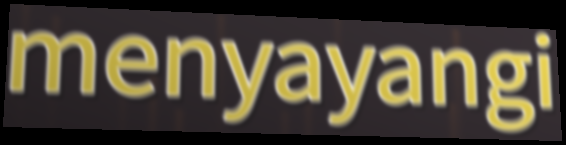
menyayangi